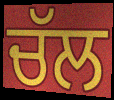
ਚੱਲ